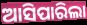
ଆସିପାରିଲା